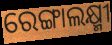
ରେଙ୍ଗାଲକ୍ଷ୍ମୀ